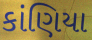
કાંણિયા